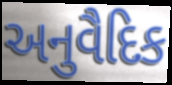
અનુવૈદિક